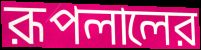
রূপলালের